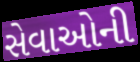
સેવાઓની